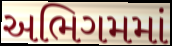
અભિગમમાં